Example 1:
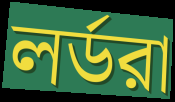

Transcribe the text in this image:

লর্ডরা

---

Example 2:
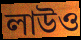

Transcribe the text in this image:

লাউও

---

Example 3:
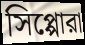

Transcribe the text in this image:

সিপ্পোরা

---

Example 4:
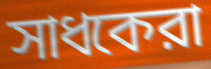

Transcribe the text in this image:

সাধকেরা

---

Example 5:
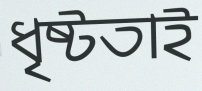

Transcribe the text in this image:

ধৃষ্টতাই